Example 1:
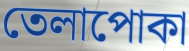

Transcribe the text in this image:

তেলাপোকা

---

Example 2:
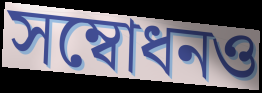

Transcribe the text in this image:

সম্বোধনও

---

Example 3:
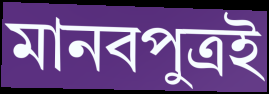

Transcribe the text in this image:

মানবপুত্রই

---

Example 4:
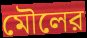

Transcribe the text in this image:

মৌলের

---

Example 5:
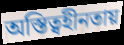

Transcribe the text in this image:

অস্তিত্বহীনতায়